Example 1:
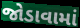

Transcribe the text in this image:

જોડાવામાં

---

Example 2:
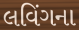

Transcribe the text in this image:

લવિંગના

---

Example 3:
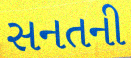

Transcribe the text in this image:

સનતની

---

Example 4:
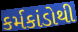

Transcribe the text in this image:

કર્મકાંડોથી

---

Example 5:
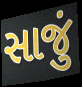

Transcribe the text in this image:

સાજું